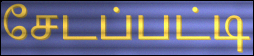
சேடப்பட்டி